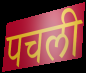
पचली